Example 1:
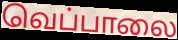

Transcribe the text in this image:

வெப்பாலை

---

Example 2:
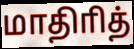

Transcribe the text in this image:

மாதிரித்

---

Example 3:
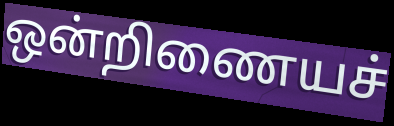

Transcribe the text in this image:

ஒன்றிணையச்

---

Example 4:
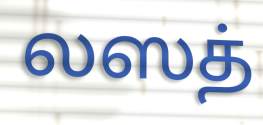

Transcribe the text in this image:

லஸத்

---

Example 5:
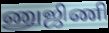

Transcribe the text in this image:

ணுஜிணி